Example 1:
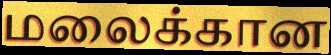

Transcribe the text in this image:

மலைக்கான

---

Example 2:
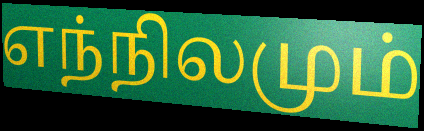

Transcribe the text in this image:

எந்நிலமும்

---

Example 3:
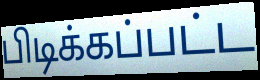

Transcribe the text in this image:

பிடிக்கப்பட்ட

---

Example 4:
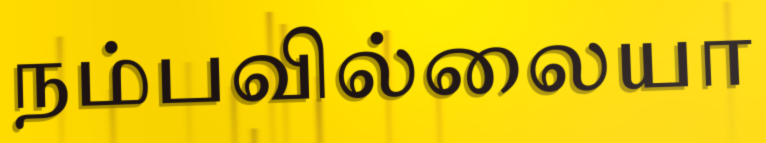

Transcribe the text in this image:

நம்பவில்லையா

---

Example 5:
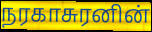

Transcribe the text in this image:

நரகாசுரனின்